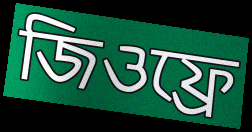
জিওফ্ৰে